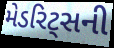
મેડરિટ્સની